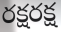
రక్షరక్ష